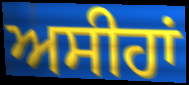
ਅਸੀਹਾਂ